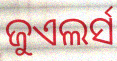
ଜୁଏଲର୍ସ